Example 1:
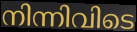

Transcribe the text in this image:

നിന്നിവിടെ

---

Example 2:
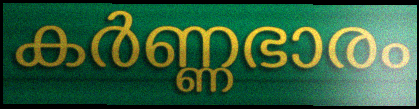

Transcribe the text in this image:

കർണ്ണഭാരം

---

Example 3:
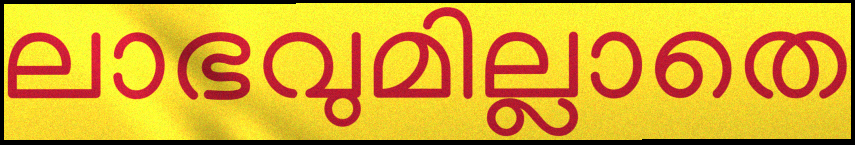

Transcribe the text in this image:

ലാഭവുമില്ലാതെ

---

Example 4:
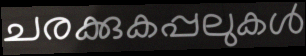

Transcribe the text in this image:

ചരക്കുകപ്പലുകൾ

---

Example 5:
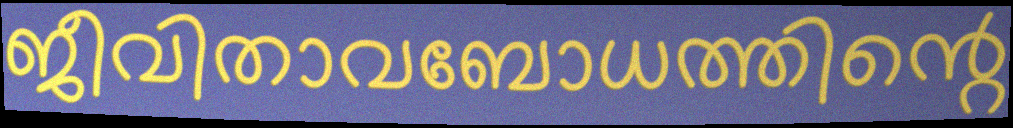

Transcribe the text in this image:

ജീവിതാവബോധത്തിന്റെ